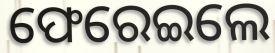
ଫେରେଇଲେ